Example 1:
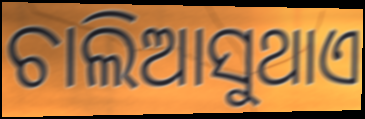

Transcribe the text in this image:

ଚାଲିଆସୁଥାଏ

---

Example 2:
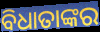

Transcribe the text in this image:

ବିଧାତାଙ୍କର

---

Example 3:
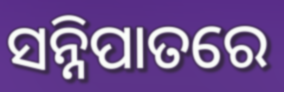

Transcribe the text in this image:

ସନ୍ନିପାତରେ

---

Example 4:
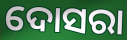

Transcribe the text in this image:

ଦୋସରା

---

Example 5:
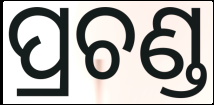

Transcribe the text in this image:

ପ୍ରଚଣ୍ଡ